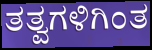
ತತ್ವಗಳಿಗಿಂತ